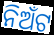
ନିଅଁଟ